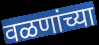
वळणांच्या